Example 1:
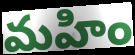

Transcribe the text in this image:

మహిం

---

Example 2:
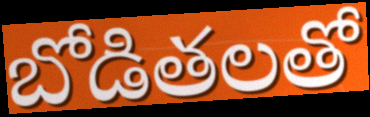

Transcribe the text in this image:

బోడితలతో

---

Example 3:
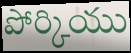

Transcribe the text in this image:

పోర్కియు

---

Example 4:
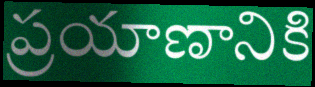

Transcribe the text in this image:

ప్రయాణానికి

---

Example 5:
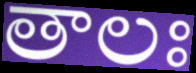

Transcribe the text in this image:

తాలః